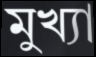
মুখ্যা